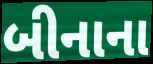
બીનાના